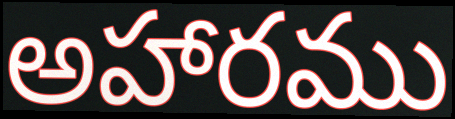
అహారము